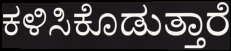
ಕಳಿಸಿಕೊಡುತ್ತಾರೆ